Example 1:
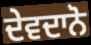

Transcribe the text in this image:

ਦੇਵਦਾਨੋ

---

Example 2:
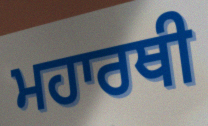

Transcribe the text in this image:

ਮਹਾਰਥੀ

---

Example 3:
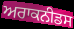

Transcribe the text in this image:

ਅਰਾਕਨੀਡਸ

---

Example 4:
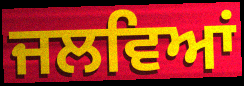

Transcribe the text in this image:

ਜਲਵਿਆਂ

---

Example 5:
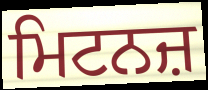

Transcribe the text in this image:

ਮਿਟਨਜ਼